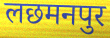
लछमनपुर